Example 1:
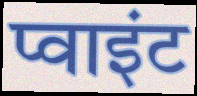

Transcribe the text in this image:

प्वाइंट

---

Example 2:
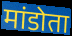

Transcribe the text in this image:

मांडोता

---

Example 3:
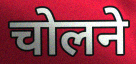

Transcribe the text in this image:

चोलने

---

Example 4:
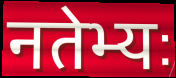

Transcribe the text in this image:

नतेभ्यः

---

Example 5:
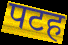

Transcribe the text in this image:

पटह